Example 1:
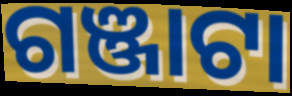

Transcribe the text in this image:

ଗଞ୍ଜାଟା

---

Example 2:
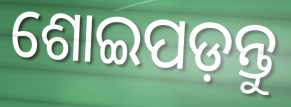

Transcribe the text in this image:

ଶୋଇପଡ଼ନ୍ତୁ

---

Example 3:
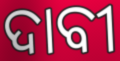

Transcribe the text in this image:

ଦାବୀ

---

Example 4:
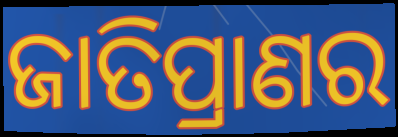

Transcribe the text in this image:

ଜାତିପ୍ରାଣର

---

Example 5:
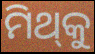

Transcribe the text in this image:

ମିଥ୍‍କୁ